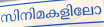
സിനിമകളിലോ